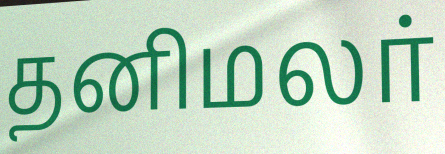
தனிமலர்